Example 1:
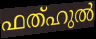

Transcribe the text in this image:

ഫത്ഹുൽ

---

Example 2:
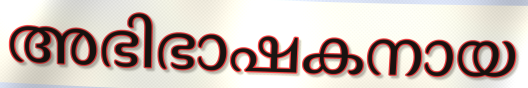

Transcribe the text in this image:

അഭിഭാഷകനായ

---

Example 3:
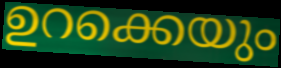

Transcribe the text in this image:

ഉറക്കെയും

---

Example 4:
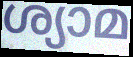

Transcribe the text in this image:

ശ്യാമ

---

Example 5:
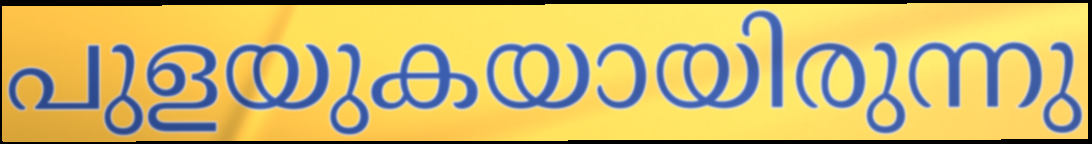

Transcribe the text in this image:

പുളയുകയായിരുന്നു